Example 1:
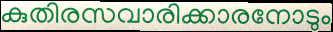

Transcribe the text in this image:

കുതിരസവാരിക്കാരനോടും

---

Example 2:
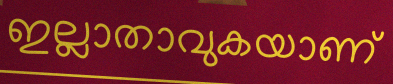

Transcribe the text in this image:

ഇല്ലാതാവുകയാണ്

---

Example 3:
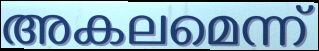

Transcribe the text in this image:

അകലമെന്ന്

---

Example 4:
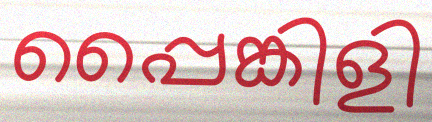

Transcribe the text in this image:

പ്പൈങ്കിളി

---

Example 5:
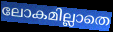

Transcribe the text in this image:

ലോകമില്ലാതെ